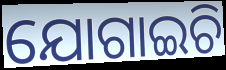
ଯୋଗାଇଚି